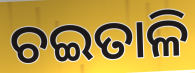
ଚଇତାଳି